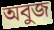
অবুজ